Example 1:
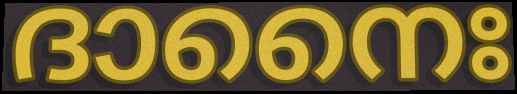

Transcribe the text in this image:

ദാനൈഃ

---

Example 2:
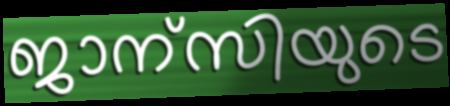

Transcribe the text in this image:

ജാന്സിയുടെ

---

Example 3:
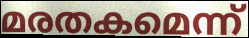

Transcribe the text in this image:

മരതകമെന്ന്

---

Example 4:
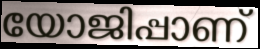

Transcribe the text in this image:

യോജിപ്പാണ്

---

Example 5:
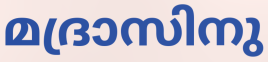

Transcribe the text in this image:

മദ്രാസിനു